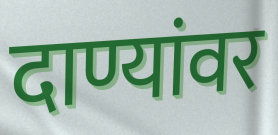
दाण्यांवर